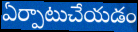
ఏర్పాటుచేయడం